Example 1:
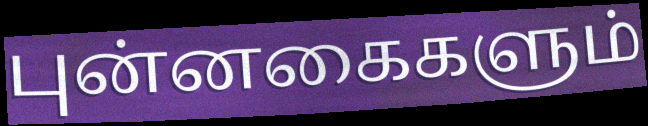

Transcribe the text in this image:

புன்னகைகளும்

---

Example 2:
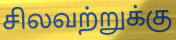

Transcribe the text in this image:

சிலவற்றுக்கு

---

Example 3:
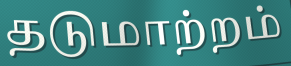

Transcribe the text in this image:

தடுமாற்றம்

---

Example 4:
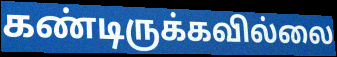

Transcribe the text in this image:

கண்டிருக்கவில்லை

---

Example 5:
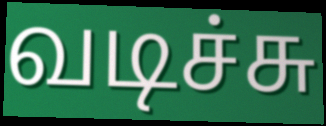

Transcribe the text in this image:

வடிச்சு